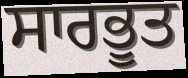
ਸਾਰਭੂਤ